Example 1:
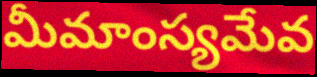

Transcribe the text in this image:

మీమాంస్యమేవ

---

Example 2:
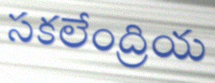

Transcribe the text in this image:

సకలేంద్రియ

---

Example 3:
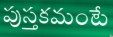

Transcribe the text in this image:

పుస్తకమంటే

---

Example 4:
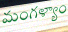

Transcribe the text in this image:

మంగళ్యాం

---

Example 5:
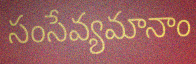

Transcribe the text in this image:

సంసేవ్యమానాం